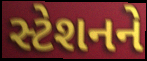
સ્ટેશનને